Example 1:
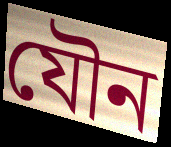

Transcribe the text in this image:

যৌন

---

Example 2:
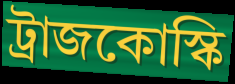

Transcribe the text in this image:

ট্রাজকোস্কি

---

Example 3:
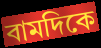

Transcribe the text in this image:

বামদিকে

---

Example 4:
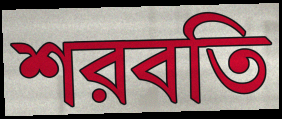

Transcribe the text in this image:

শরবতি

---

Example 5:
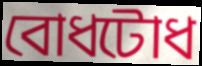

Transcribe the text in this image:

বোধটোধ